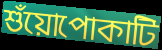
শুঁয়োপোকাটি